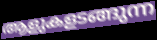
ആളുകളടങ്ങുന്ന